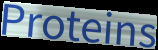
Proteins